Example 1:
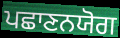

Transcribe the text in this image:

ਪਛਾਣਨਯੋਗ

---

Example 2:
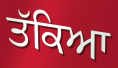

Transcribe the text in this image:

ਤੱਕਿਆ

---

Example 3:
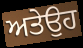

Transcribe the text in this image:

ਅਤੇਉਹ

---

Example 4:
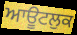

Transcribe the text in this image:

ਆਊਟਲੁਕ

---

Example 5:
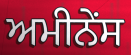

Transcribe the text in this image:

ਅਮੀਨੇਂਸ